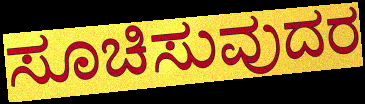
ಸೂಚಿಸುವುದರ